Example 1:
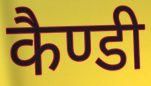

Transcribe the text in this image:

कैण्डी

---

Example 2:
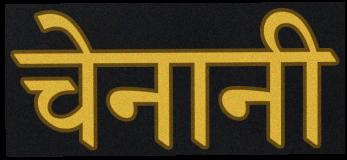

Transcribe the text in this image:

चेनानी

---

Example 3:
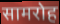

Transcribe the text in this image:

सामरोह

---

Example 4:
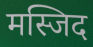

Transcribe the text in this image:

मस्जिद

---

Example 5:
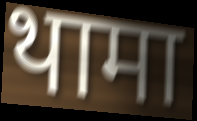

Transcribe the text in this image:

थामा